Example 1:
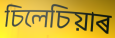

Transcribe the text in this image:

চিলেচিয়াৰ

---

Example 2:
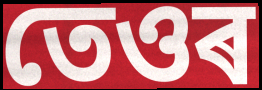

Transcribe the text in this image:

তেওৰ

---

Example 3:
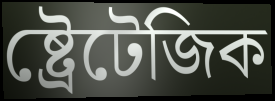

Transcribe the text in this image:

ষ্ট্ৰেটেজিক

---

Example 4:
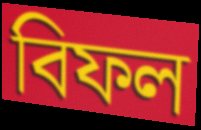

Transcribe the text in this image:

বিফল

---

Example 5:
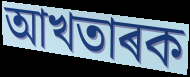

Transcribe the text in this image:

আখতাৰক